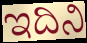
ಇದಿನಿ